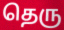
தெரு